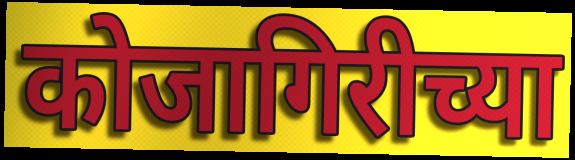
कोजागिरीच्या